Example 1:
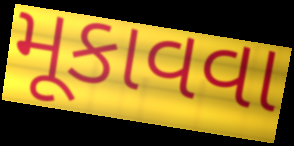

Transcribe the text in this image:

મૂકાવવા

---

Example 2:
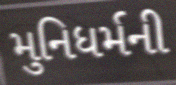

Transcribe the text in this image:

મુનિધર્મની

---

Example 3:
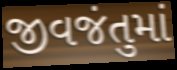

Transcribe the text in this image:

જીવજંતુમાં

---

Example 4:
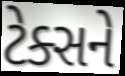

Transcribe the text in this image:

ટેક્સને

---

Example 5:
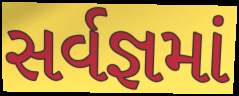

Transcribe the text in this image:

સર્વજ્ઞમાં